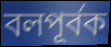
বলপূর্বক